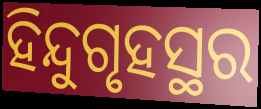
ହିନ୍ଦୁଗୃହସ୍ଥର